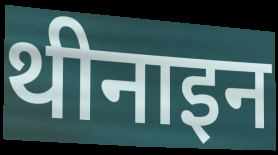
थीनाइन